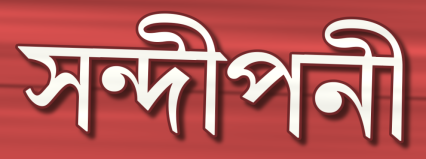
সন্দীপনী